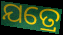
ଯତ୍ରେ